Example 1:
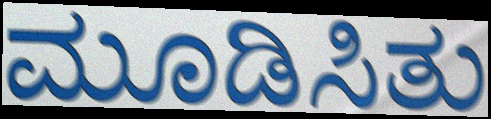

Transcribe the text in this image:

ಮೂಡಿಸಿತು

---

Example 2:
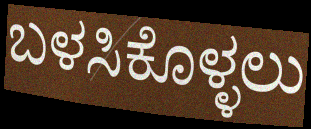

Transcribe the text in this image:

ಬಳಸಿಕೊಳ್ಳಲು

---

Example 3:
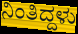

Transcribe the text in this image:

ನಿಂತಿದ್ದಳು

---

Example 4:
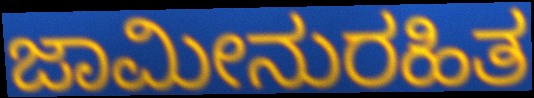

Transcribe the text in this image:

ಜಾಮೀನುರಹಿತ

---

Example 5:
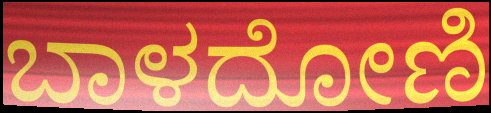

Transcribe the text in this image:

ಬಾಳದೋಣಿ